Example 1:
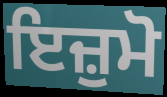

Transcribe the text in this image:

ਇਜ਼ੁਮੋ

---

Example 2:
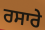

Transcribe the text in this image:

ਰਸਾਰੇ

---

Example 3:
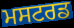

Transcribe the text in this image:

ਮਸਟਰਡ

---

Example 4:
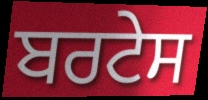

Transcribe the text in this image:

ਬਰਟੇਸ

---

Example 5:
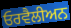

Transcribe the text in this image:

ਓਰਵੈਲੀਅਨ